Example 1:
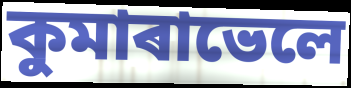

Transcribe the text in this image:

কুমাৰাভেলে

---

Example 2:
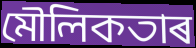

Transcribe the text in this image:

মৌলিকতাৰ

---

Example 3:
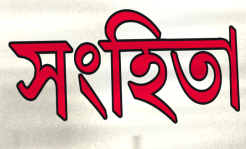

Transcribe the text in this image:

সংহিতা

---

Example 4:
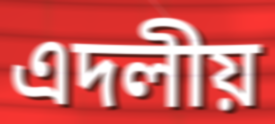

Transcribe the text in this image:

এদলীয়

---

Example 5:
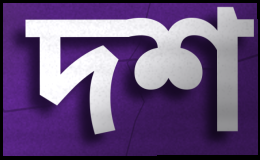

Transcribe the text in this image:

দশ